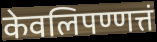
केवलिपण्णत्तं